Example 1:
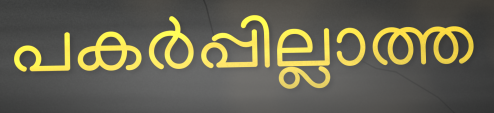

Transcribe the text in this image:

പകർപ്പില്ലാത്ത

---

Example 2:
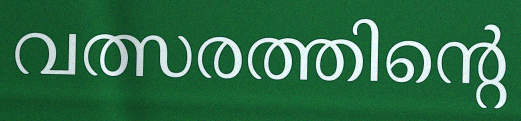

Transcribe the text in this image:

വത്സരത്തിന്റെ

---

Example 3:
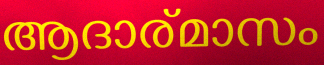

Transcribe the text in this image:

ആദാര്മാസം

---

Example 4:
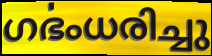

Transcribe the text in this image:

ഗൎഭംധരിച്ചു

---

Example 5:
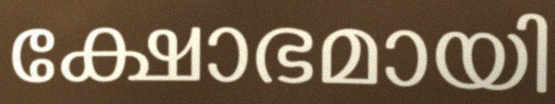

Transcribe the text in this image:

ക്ഷോഭമായി